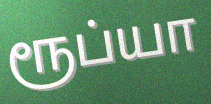
ரூப்யா